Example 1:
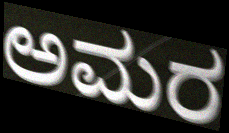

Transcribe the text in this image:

ಅಮರ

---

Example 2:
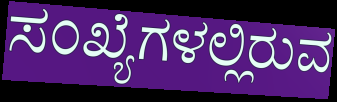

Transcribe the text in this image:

ಸಂಖ್ಯೆಗಳಲ್ಲಿರುವ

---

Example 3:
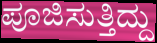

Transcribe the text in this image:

ಪೂಜಿಸುತ್ತಿದ್ದು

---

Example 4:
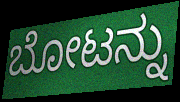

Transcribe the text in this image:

ಬೋಟನ್ನು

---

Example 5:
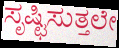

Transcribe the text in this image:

ಸೃಷ್ಟಿಸುತ್ತಲೇ